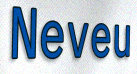
Neveu